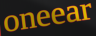
oneear